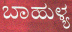
ಬಾಹುಳ್ಯ